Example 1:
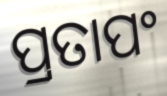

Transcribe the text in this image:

ପ୍ରତାପଂ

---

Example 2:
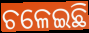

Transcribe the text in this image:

ଚଳେଇଛି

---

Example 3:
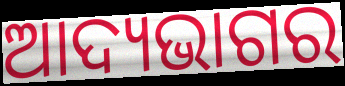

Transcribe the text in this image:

ଆଦ୍ୟଭାଗର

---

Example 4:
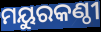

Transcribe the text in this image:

ମୟୁରକଣ୍ଠୀ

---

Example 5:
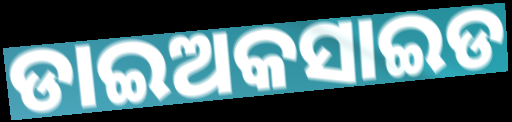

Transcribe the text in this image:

ଡାଇଅକସାଇଡ